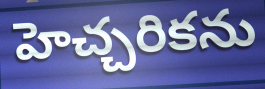
హెచ్చరికను